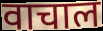
वाचाल